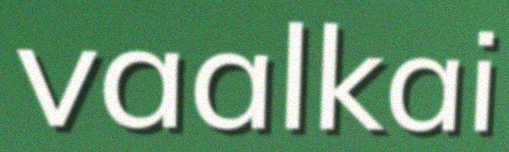
vaalkai